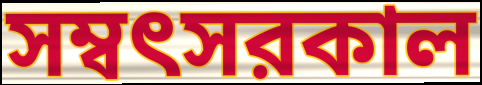
সম্বৎসরকাল